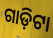
ଗାଡ଼ିଟା